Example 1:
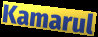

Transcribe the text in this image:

Kamarul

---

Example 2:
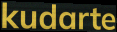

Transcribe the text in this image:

kudarte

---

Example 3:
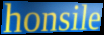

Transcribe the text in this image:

honsile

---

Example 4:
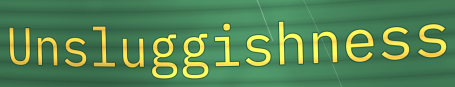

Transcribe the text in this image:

Unsluggishness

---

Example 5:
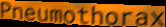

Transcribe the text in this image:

Pneumothorax